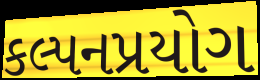
કલ્પનપ્રયોગ